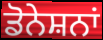
ਡੋਨੇਸ਼ਨਾਂ